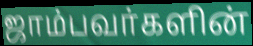
ஜாம்பவர்களின்